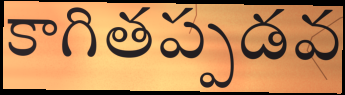
కాగితప్పడవ